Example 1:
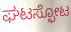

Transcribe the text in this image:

ಘಟಸ್ಫೋಟ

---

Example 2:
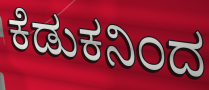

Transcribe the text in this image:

ಕೆಡುಕನಿಂದ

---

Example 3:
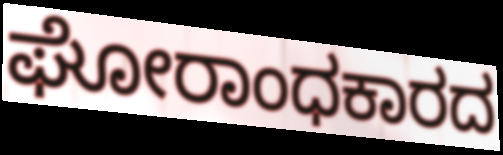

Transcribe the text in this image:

ಘೋರಾಂಧಕಾರದ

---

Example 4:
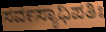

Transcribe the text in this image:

ಸರ್ವಸ್ಯಾಧಿಪತಿಃ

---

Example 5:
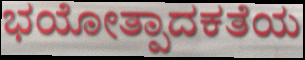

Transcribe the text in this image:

ಭಯೋತ್ಪಾದಕತೆಯ